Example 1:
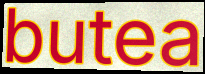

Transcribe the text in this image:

butea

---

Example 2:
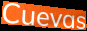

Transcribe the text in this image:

Cuevas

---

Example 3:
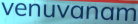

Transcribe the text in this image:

venuvanam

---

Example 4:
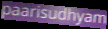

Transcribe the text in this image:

paarisudhyam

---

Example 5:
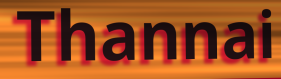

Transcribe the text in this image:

Thannai